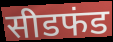
सीडफंड